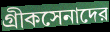
গ্রীকসেনাদের